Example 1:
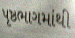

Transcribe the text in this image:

પૃષ્ઠભાગમાંથી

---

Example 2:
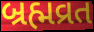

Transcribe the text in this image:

બ્રહ્મવ્રત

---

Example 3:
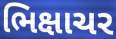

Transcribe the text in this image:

ભિક્ષાચર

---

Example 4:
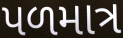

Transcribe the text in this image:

પળમાત્ર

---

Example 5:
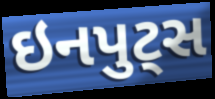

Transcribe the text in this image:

ઇનપુટ્સ